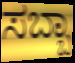
ಸಬ್ಬಾ